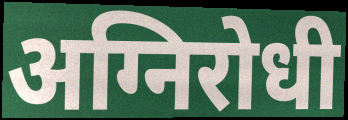
अग्निरोधी